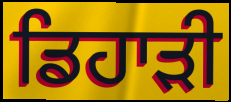
ਡਿਹਾੜੀ